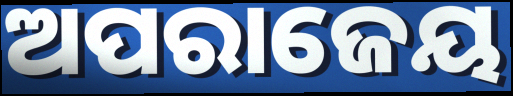
ଅପରାଜେୟ